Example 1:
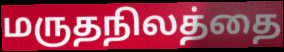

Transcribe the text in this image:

மருதநிலத்தை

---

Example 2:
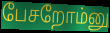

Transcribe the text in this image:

பேசறோம்னு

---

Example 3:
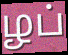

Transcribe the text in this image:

ழப்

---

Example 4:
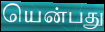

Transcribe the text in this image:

யென்பது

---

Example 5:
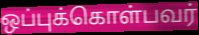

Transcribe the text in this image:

ஒப்புக்கொள்பவர்